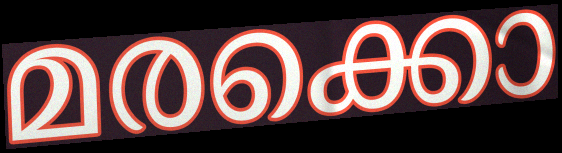
മരക്കൊ